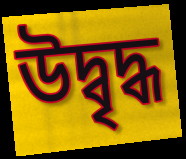
উদ্বৃদ্ধ